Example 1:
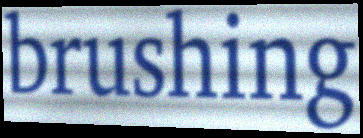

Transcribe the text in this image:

brushing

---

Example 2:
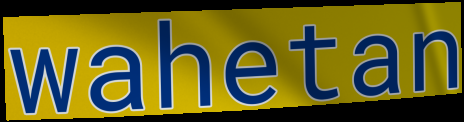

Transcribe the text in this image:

wahetan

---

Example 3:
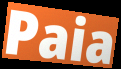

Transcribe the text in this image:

Paia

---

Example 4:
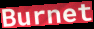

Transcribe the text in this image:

Burnet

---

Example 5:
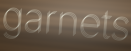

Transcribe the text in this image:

garnets